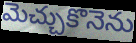
మెచ్చుకొనెను